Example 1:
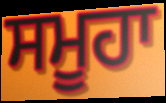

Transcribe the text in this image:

ਸਮੂਹਾ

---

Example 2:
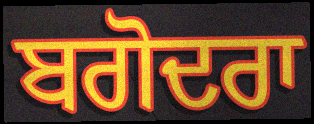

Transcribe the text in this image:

ਬਗੋਦਰਾ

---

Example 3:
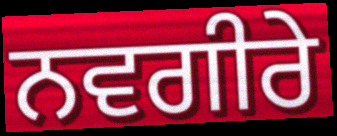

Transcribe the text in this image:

ਨਵਗੀਰੇ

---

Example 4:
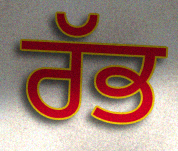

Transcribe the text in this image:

ਰੱਭ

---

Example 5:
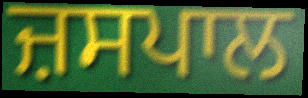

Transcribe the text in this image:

ਜ਼ਸਪਾਲ